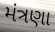
મંત્રણા